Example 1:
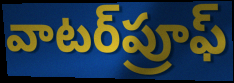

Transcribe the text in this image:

వాటర్‌ప్రూఫ్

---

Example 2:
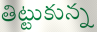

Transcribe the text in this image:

తిట్టుకున్న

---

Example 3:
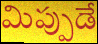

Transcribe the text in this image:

మిప్పుడే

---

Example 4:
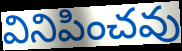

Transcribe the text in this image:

వినిపించవు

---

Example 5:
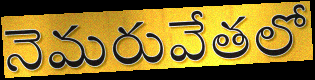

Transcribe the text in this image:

నెమరువేతలో